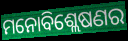
ମନୋବିଶ୍ଲେଷଣର